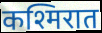
कश्मिरात